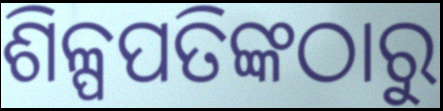
ଶିଳ୍ପପତିଙ୍କଠାରୁ